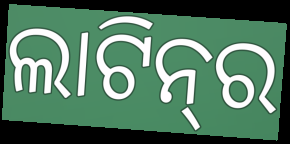
ଲାଟିନ୍‌ର